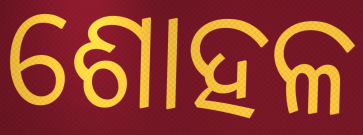
ଶୋହଳ